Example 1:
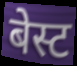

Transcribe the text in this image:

बेस्ट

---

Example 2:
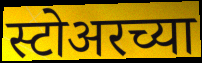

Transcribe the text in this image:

स्टोअरच्या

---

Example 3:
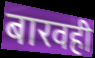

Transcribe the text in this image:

बारवही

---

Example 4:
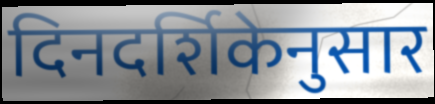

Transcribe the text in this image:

दिनदर्शिकेनुसार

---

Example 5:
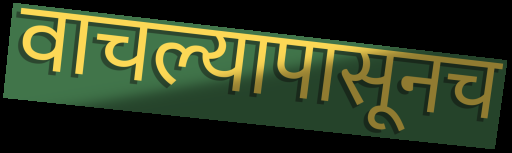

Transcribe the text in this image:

वाचल्यापासूनच